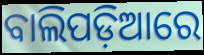
ବାଲିପଡ଼ିଆରେ